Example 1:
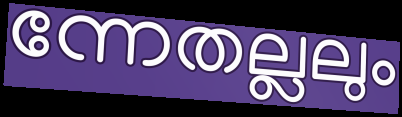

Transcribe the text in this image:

ന്നേതല്ലലും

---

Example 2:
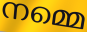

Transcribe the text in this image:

നമ്മെ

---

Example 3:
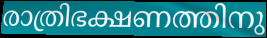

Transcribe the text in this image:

രാത്രിഭക്ഷണത്തിനു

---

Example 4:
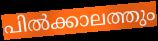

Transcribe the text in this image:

പിൽക്കാലത്തും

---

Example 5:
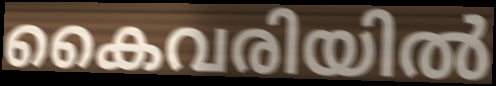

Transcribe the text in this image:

കൈവരിയിൽ